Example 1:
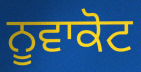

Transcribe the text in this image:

ਨੂਵਾਕੋਟ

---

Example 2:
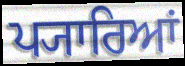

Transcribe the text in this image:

ਪ੍ਯਾਰਿਆਂ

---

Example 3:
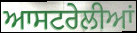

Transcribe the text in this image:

ਆਸਟਰੇਲੀਆਂ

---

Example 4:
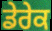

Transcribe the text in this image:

ਡੇਰੇਕ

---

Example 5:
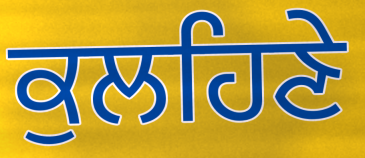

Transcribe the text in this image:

ਕੁਲਹਿਣੇ